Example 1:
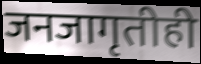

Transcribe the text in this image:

जनजागृतीही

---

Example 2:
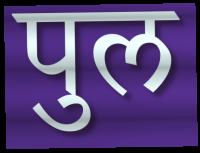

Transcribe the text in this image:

पुल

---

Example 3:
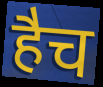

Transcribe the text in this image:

हैच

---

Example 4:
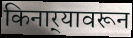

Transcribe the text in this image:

किनार्यावरून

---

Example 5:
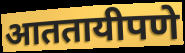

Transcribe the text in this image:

आततायीपणे